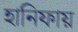
হানিফায়